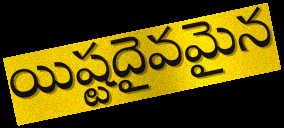
యిష్టదైవమైన